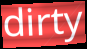
dirty